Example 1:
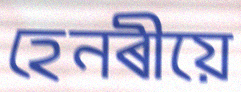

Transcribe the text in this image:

হেনৰীয়ে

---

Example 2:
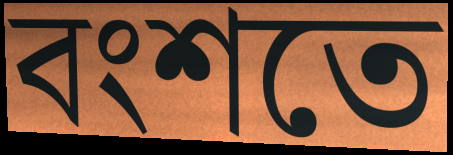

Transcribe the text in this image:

বংশতে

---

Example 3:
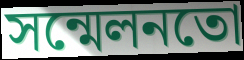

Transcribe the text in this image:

সন্মেলনতো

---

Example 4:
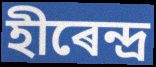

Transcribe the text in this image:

হীৰেন্দ্ৰ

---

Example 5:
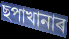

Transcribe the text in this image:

ছপাখানাৰ